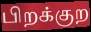
பிறக்குற